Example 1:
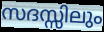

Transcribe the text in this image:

സദസ്സിലും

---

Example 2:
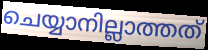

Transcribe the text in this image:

ചെയ്യാനില്ലാത്തത്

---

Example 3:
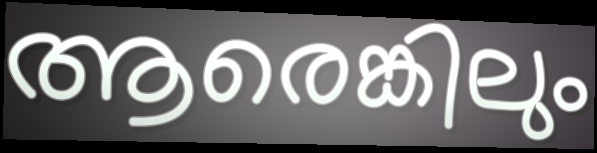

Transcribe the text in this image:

ആരെങ്കിലും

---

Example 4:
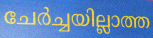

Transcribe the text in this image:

ചേർച്ചയില്ലാത്ത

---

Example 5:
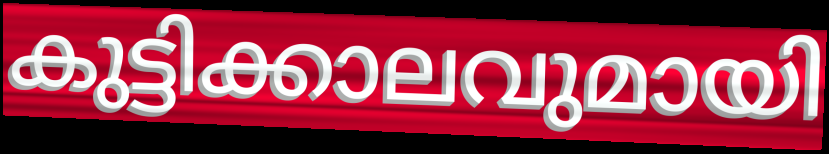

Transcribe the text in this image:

കുട്ടിക്കാലവുമായി